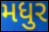
મધુર